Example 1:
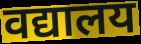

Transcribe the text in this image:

वद्यालय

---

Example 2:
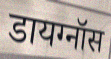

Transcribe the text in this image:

डायग्नॉस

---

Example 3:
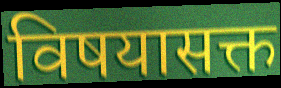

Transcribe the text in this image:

विषयासक्त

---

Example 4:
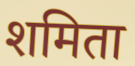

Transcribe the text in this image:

शमिता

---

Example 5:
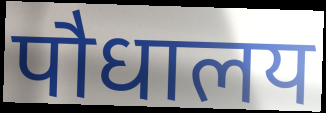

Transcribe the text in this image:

पौधालय